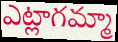
ఎట్లాగమ్మా